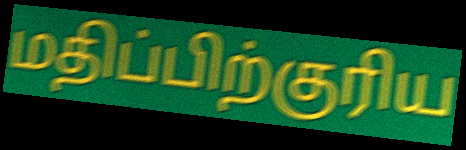
மதிப்பிற்குரிய